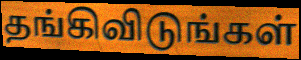
தங்கிவிடுங்கள்